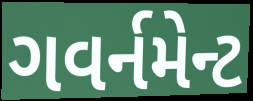
ગવર્નમેન્ટ